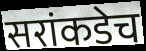
सरांकडेच